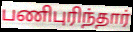
பணிபுரிந்தார்